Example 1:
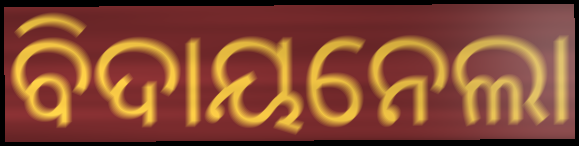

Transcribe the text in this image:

ବିଦାୟନେଲା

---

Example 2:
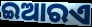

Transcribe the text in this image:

ଇଆରଏ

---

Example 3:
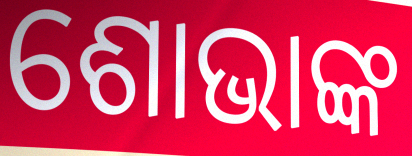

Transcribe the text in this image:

ଶୋଭାଙ୍କ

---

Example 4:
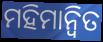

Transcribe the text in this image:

ମହିମାନ୍ଵିତ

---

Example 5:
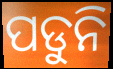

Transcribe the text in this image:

ପଡୁନି